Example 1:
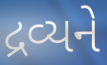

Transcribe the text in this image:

દ્રવ્યને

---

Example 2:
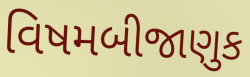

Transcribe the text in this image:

વિષમબીજાણુક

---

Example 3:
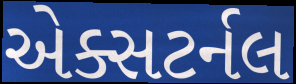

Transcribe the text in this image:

એક્સટર્નલ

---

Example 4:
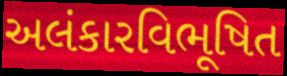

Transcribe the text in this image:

અલંકારવિભૂષિત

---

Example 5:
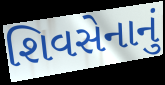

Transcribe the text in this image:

શિવસેનાનું